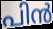
പിൻ